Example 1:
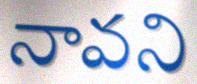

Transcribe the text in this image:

నావని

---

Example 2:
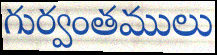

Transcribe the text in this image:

గుర్వంతములు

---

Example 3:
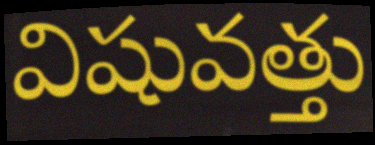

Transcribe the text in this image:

విషువత్తు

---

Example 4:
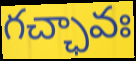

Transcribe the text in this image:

గచ్ఛావః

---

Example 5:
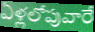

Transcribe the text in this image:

ఏళ్లలోపువారే